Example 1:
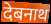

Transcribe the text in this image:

देबनाथ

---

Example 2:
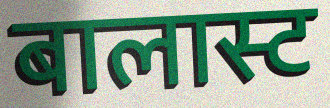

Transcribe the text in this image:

बालास्ट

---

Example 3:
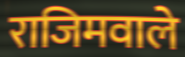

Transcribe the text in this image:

राजिमवाले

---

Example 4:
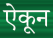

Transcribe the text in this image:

ऐकून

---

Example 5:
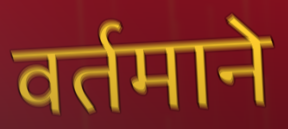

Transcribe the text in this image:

वर्तमाने